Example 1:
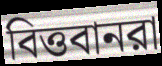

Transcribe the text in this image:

বিত্তবানরা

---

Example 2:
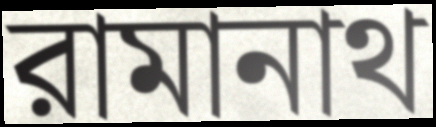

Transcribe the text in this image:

রামানাথ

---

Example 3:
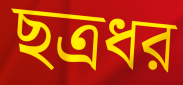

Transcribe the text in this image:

ছত্রধর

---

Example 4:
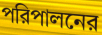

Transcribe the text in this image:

পরিপালনের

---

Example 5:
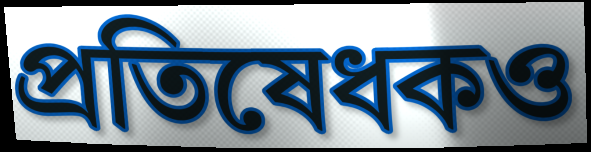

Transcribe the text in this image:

প্রতিষেধকও